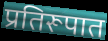
प्रतिरूपात